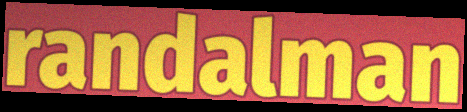
randalman